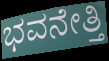
ಭವನೇತ್ತಿ